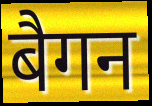
बैगन